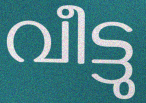
വീട്ടു